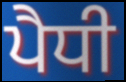
ਪੈਧੀ